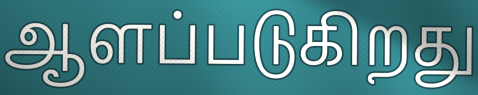
ஆளப்படுகிறது